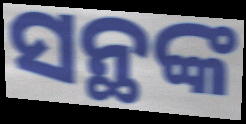
ସନ୍ଥଙ୍କ